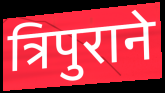
त्रिपुराने